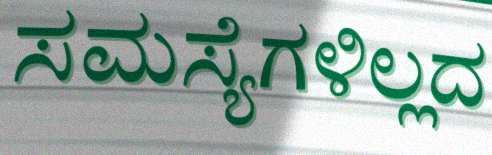
ಸಮಸ್ಯೆಗಳಿಲ್ಲದ